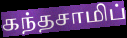
கந்தசாமிப்